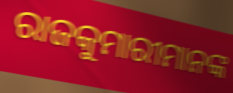
ରାଜକୁମାରୀମାନଙ୍କ